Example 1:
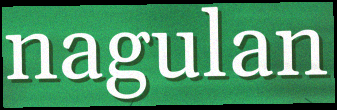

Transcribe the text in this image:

nagulan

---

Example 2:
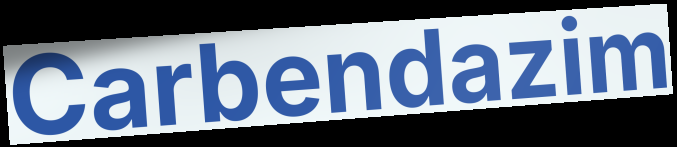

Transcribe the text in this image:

Carbendazim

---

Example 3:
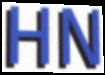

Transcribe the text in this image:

HN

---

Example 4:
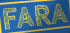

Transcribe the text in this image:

FARA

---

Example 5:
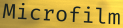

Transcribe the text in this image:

Microfilm